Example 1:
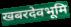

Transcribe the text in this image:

खबरदेवभूमि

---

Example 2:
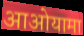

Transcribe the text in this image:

आओयामा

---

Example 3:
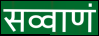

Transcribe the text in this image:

सव्वाणं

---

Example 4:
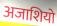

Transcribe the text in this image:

अजाशियो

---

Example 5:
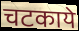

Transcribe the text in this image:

चटकाये